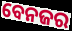
ବେନଜର